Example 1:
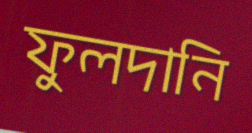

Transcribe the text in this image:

ফুলদানি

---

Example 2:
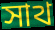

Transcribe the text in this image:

সাথ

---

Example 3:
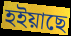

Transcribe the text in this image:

হইয়াছে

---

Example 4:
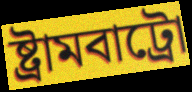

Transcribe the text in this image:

ষ্ট্ৰামবাট্ৰো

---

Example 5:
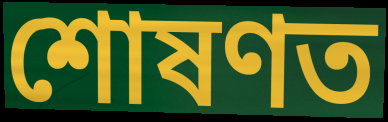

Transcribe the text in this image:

শোষণত